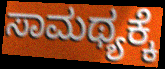
ಸಾಮಥ್ಯಕ್ಕೆ